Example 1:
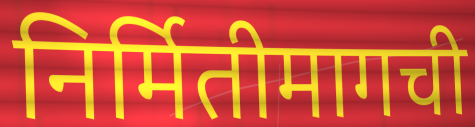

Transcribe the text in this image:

निर्मितीमागची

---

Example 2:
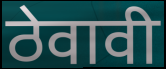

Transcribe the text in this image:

ठेवावी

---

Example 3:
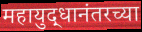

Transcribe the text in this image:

महायुद्धानंतरच्या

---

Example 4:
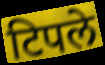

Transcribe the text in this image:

टिपले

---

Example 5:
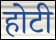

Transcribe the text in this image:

होटी